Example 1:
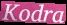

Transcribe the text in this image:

Kodra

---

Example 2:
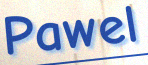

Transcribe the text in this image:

Pawel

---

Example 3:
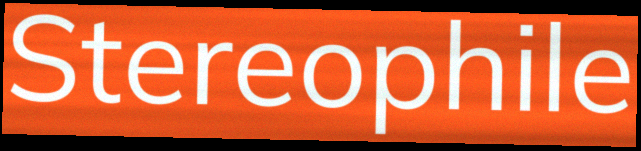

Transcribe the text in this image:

Stereophile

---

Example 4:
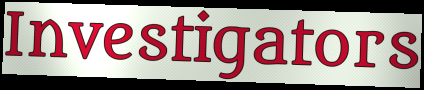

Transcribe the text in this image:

Investigators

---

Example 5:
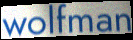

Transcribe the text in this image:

wolfman